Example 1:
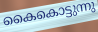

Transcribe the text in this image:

കൈകൊട്ടുന്നു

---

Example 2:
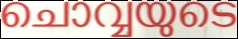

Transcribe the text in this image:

ചൊവ്വയുടെ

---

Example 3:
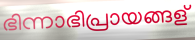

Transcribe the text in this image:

ഭിന്നാഭിപ്രായങ്ങള്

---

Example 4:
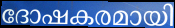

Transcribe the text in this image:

ദോഷകരമായി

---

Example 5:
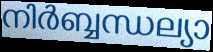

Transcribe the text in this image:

നിർബ്ബന്ധല്യാ